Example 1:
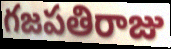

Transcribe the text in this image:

గజపతిరాజు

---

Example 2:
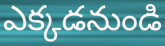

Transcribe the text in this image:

ఎక్కడనుండి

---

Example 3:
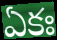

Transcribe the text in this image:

ఏకః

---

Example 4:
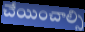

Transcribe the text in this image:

చేయించాల్సి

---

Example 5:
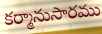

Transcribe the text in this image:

కర్మానుసారము